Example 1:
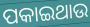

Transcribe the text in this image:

ପକାଇଥାଉ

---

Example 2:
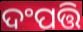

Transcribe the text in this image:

ଦଂପତ୍ତି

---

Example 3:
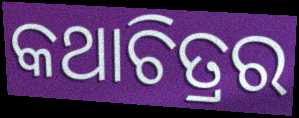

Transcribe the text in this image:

କଥାଚିତ୍ରର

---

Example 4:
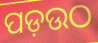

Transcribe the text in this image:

ପଡ଼ଉଠ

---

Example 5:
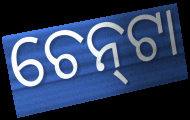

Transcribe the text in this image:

ଚେନ୍‌ଟା